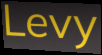
Levy